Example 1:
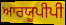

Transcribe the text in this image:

ਆਰਯੂਪੀਪੀ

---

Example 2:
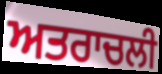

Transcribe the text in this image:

ਅਤਰਾਚਲੀ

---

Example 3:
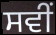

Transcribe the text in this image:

ਸਵੀਂ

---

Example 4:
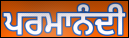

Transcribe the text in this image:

ਪਰਮਾਨੰਦੀ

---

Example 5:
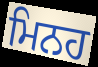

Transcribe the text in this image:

ਮਿਨਹ